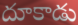
దూకాడు